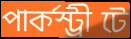
পার্কস্ট্রীটে